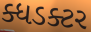
ક્ધડક્ટર